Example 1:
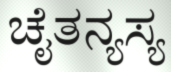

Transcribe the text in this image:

ಚೈತನ್ಯಸ್ಯ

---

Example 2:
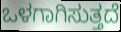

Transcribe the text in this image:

ಒಳಗಾಗಿಸುತ್ತದೆ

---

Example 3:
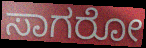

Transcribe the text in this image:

ಸಾಗರೋ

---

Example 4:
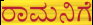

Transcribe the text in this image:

ರಾಮನಿಗೆ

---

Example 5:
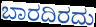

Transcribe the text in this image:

ಬಾರದಿರದು